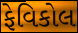
ફેવિકોલ